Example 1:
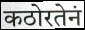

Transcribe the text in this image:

कठोरतेनं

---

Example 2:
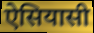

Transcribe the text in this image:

ऐसियासी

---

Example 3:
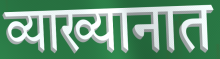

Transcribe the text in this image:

व्याख्यानात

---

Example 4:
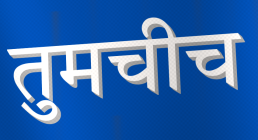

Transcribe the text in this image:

तुमचीच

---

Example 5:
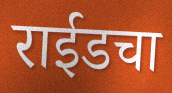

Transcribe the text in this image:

राईडचा